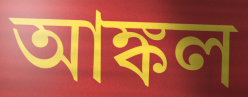
আঙ্কল